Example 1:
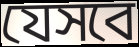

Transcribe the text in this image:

যেসবে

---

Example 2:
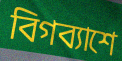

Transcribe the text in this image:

বিগব্যাশে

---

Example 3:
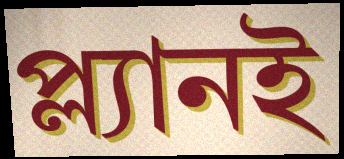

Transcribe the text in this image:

প্ল্যানই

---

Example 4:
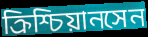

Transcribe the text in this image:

ক্রিশ্চিয়ানসেন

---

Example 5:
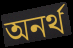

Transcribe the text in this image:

অনর্থ